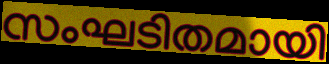
സംഘടിതമായി